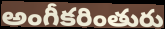
అంగీకరింతురు